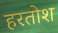
हरतोश